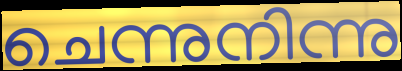
ചെന്നുനിന്നു